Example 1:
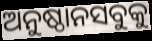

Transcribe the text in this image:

ଅନୁଷ୍ଠାନସବୁକୁ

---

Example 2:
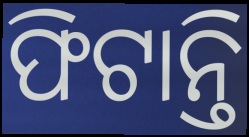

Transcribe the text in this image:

ଫିଟାନ୍ତି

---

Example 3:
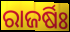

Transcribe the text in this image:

ରାଜର୍ଷିଃ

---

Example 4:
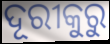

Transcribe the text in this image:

ଦୂରୀକୁରୁ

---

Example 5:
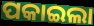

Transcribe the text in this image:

ପକାଇଲା